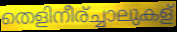
തെളിനീര്ച്ചാലുകള്